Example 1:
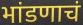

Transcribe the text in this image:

भांडणाचं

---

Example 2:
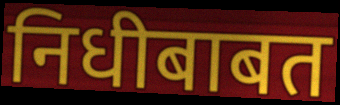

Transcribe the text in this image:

निधीबाबत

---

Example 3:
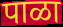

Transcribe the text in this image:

पाळा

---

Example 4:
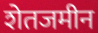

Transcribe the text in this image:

शेतजमीन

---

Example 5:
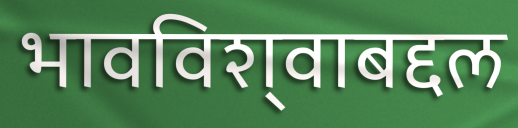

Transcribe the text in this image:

भावविश्वाबद्दल